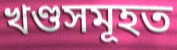
খণ্ডসমূহত